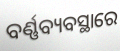
ବର୍ଣ୍ଣବ୍ୟବସ୍ଥାରେ